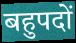
बहुपदों